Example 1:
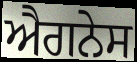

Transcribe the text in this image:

ਐਗਨੇਸ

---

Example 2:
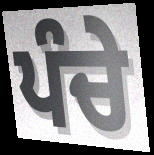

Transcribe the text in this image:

ਪੰਚੇ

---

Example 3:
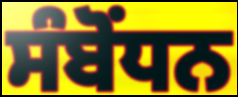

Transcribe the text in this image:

ਸੰਬੋੰਧਨ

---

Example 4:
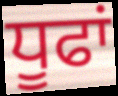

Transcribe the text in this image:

ਧੂਫਾਂ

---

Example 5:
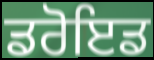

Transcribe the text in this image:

ਡਰੋਇਡ